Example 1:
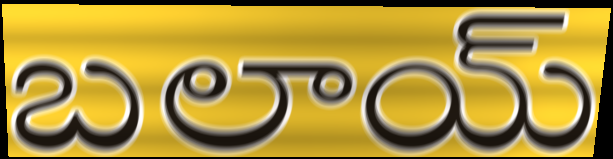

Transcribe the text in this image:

బలాయ్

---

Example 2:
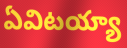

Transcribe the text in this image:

ఏవిటయ్యా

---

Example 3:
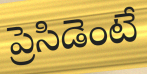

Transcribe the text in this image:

ప్రెసిడెంటే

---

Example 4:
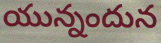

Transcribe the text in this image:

యున్నందున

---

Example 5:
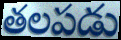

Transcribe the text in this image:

తలపడు